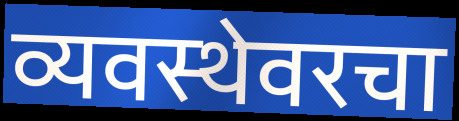
व्यवस्थेवरचा